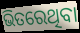
ଭିତରେଥିବା